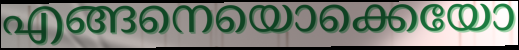
എങ്ങനെയൊക്കെയോ